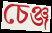
চেঞ্জ